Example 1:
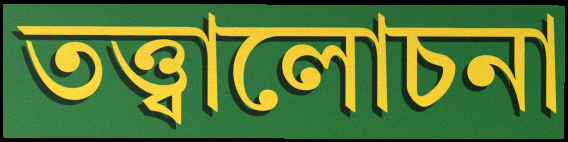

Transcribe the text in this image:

তত্ত্বালোচনা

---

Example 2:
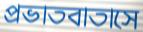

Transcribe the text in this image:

প্রভাতবাতাসে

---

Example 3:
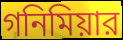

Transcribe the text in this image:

গনিমিয়ার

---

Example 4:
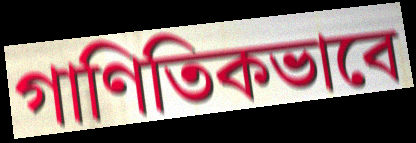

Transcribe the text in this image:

গাণিতিকভাবে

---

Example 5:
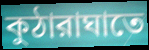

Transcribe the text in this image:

কুঠারাঘাতে